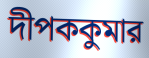
দীপককুমার